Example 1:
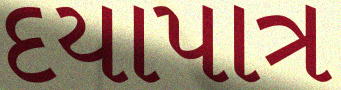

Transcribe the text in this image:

દયાપાત્ર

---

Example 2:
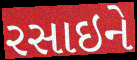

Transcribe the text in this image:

રસાઇને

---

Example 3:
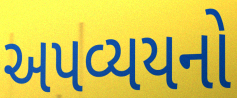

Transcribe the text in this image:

અપવ્યયનો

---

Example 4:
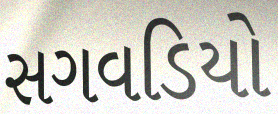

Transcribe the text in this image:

સગવડિયો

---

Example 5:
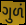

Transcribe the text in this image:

ગુળં